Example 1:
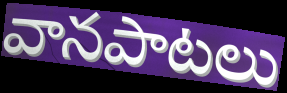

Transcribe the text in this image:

వానపాటలు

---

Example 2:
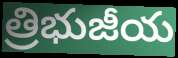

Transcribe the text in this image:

త్రిభుజీయ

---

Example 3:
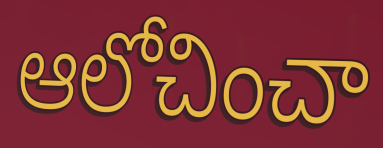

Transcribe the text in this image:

ఆలోచించా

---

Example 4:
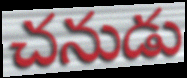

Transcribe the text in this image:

చనుడు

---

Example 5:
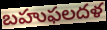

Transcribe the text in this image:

బహుఫలదళ